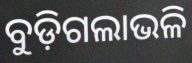
ବୁଡ଼ିଗଲାଭଳି